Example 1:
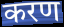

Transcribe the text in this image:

करण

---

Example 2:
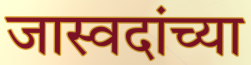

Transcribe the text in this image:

जास्वदांच्या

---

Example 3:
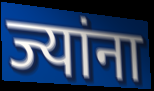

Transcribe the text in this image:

ज्यांना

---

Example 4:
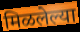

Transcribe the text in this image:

मिळलेल्या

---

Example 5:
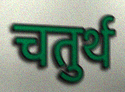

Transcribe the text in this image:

चतुर्थ